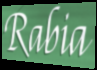
Rabia